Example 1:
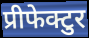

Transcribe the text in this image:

प्रीफेक्टुर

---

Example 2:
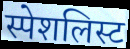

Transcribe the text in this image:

स्पेशलिस्ट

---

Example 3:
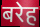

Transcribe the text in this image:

बरेह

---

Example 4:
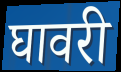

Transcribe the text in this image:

घावरी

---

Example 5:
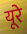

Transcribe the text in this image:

यूरे